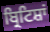
ਬ੍ਰਿਟਿਸ਼ਾਂ